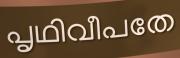
പൃഥിവീപതേ